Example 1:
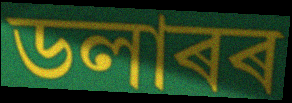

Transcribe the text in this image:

ডলাৰৰ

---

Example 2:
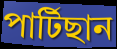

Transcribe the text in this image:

পাৰ্টিছান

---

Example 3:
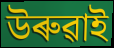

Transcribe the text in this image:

উৰুৱাই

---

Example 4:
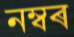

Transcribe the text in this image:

নম্বৰ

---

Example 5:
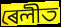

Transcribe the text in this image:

ৰেলীত